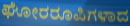
ಘೋರರೂಪಿಗಳಾದ